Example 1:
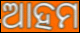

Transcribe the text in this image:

ଆହମ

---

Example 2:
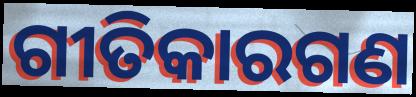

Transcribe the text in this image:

ଗୀତିକାରଗଣ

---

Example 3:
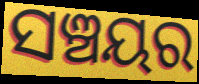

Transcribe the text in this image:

ସଞ୍ଚୟର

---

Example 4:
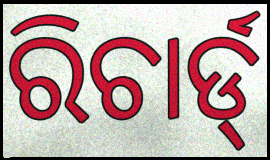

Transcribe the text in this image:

ରିଚାର୍ଡ୍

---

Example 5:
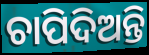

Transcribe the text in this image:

ଚାପିଦିଅନ୍ତି